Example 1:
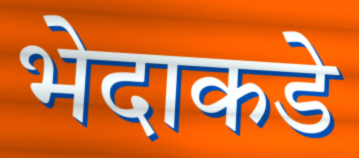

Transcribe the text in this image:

भेदाकडे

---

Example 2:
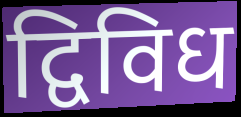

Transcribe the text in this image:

द्विविध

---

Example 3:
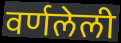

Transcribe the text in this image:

वर्णलेली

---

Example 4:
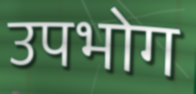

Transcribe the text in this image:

उपभोग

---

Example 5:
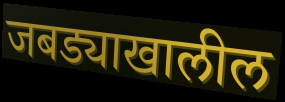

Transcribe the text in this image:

जबड्याखालील